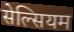
सेल्सियम